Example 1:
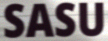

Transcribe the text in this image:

SASU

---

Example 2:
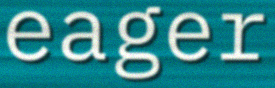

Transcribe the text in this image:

eager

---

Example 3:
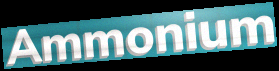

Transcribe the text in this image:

Ammonium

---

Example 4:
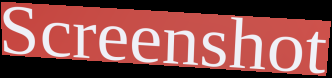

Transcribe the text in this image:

Screenshot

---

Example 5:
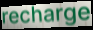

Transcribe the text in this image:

recharge